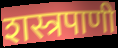
शस्त्रपाणी